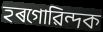
হৰগোৱিন্দক